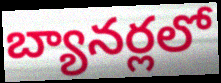
బ్యానర్లలో